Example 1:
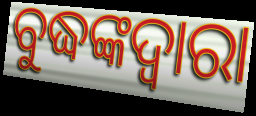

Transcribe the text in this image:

ବୁଦ୍ଧଙ୍କଦ୍ଵାରା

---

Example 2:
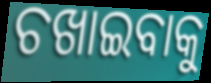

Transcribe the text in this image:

ଚଖାଇବାକୁ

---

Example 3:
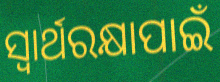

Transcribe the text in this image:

ସ୍ବାର୍ଥରକ୍ଷାପାଇଁ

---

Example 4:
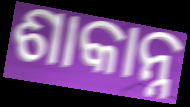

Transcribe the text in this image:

ଶାକାନ୍ନ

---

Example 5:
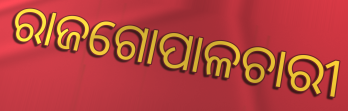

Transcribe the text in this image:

ରାଜଗୋପାଳଚାରୀ